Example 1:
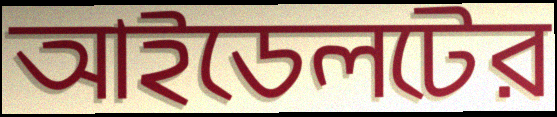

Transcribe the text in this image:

আইডেলটের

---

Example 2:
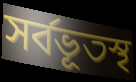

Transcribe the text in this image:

সর্বভূতস্থ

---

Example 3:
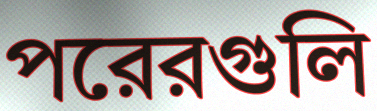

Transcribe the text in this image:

পরেরগুলি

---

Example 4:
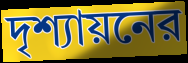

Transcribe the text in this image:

দৃশ্যায়নের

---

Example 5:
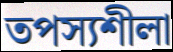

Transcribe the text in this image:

তপস্যশীলা